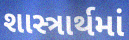
શાસ્ત્રાર્થમાં